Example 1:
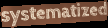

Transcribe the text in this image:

systematized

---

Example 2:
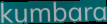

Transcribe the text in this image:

kumbara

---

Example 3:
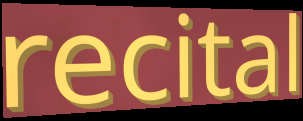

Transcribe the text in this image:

recital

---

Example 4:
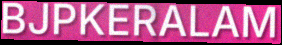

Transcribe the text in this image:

BJPKERALAM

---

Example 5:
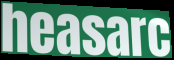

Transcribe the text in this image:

heasarc